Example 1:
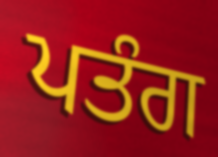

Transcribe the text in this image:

ਪਤੰਗ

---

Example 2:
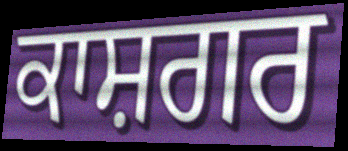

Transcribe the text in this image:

ਕਾਸ਼ਗਰ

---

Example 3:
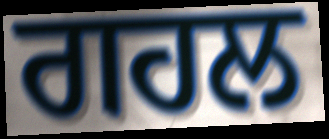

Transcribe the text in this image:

ਗਹਲ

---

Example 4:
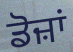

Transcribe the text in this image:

ਡੋਜ਼ਾਂ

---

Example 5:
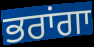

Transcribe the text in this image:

ਭਰਾਂਗਾ